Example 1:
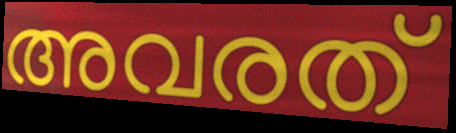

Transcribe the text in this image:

അവരത്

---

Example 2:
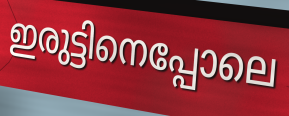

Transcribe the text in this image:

ഇരുട്ടിനെപ്പോലെ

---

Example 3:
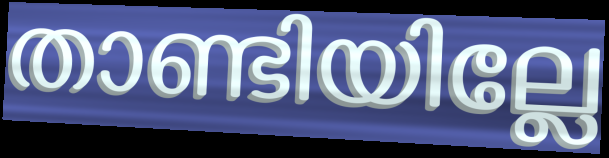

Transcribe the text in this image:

താണ്ടിയില്ലേ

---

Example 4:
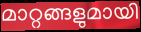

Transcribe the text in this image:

മാറ്റങ്ങളുമായി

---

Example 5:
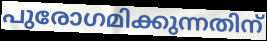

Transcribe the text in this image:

പുരോഗമിക്കുന്നതിന്